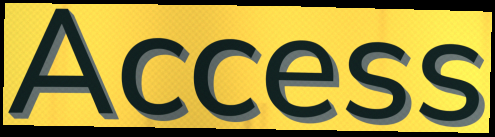
Access